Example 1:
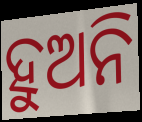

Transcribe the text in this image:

ହୁଅନି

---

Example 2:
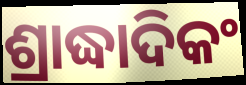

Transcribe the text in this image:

ଶ୍ରାଦ୍ଧାଦିକଂ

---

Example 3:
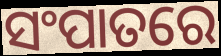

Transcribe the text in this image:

ସଂପାତରେ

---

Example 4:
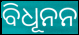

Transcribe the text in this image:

ବିଧୂନନ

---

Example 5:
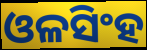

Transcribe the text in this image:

ଓଳସିଂହ